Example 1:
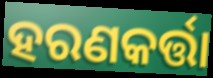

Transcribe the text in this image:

ହରଣକର୍ତ୍ତା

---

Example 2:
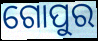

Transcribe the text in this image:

ଗୋପୁର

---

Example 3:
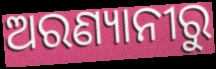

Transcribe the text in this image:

ଅରଣ୍ୟାନୀରୁ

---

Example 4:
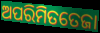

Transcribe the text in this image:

ଅପରିମିତତେଜା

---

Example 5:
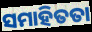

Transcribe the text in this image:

ସମାହିତତା